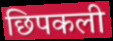
छिपकली